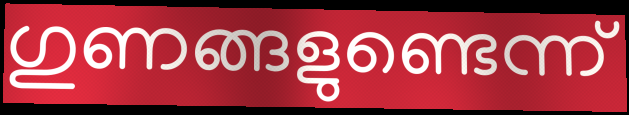
ഗുണങ്ങളുണ്ടെന്ന്